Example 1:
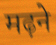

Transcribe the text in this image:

मढ़ने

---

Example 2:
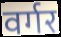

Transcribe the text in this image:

वर्गर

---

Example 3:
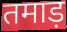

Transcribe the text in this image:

तमाड़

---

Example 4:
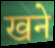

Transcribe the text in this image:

खने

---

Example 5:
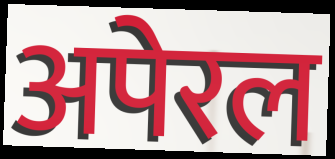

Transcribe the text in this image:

अपेरल